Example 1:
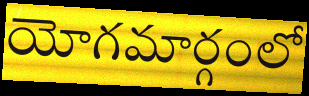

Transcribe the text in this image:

యోగమార్గంలో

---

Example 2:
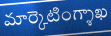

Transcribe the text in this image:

మార్కెటింగ్శాఖ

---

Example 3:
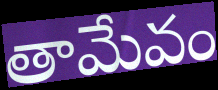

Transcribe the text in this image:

తామేవం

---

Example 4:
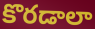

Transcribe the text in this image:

కొరడాలా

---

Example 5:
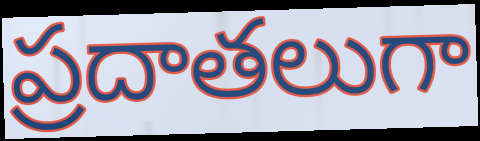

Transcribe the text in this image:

ప్రదాతలుగా